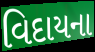
વિદાયના